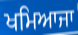
ਖਮਿਆਜਾ